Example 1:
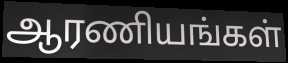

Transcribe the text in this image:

ஆரணியங்கள்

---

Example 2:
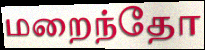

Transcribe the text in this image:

மறைந்தோ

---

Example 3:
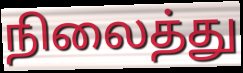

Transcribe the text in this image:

நிலைத்து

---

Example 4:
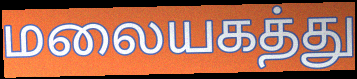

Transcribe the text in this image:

மலையகத்து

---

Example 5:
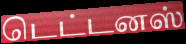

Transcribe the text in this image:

டெட்டனஸ்